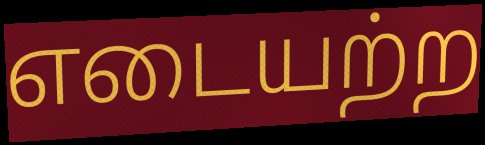
எடையற்ற